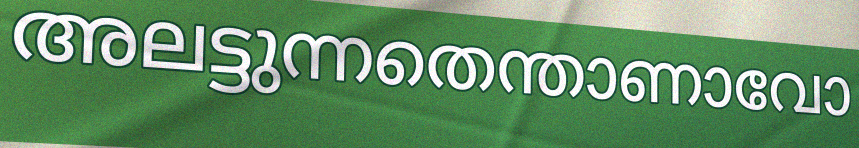
അലട്ടുന്നതെന്താണാവോ